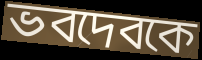
ভবদেবকে